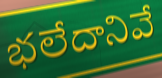
భలేదానివే